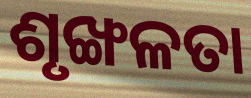
ଶୃଙ୍ଖଳତା